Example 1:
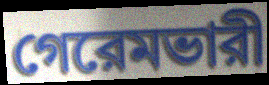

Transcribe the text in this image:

গেরেমভারী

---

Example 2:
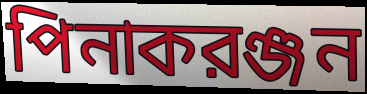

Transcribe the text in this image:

পিনাকরঞ্জন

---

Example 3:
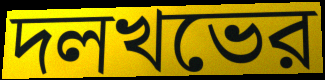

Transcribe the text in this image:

দলখভের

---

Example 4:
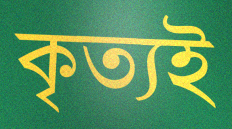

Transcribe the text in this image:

কৃত্যই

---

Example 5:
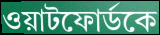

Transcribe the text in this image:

ওয়াটফোর্ডকে